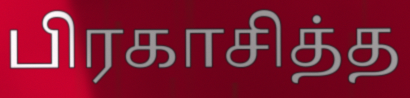
பிரகாசித்த